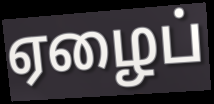
ஏழைப்